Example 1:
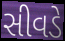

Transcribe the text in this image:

સીવડે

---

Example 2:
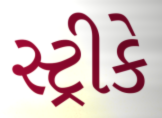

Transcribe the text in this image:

સ્ટ્રીકે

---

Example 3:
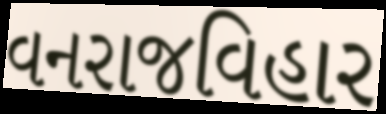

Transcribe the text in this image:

વનરાજવિહાર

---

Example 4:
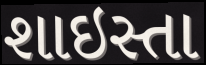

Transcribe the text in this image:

શાઇસ્તા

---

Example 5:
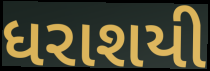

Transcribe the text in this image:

ધરાશયી